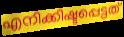
എനിക്കിഷ്ടപ്പെട്ടത്